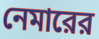
নেমারের